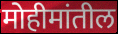
मोहीमांतील